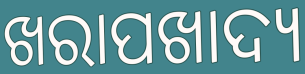
ଖରାପଖାଦ୍ୟ